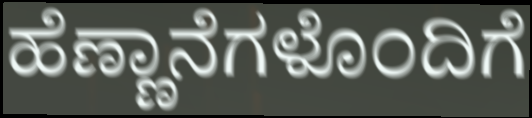
ಹೆಣ್ಣಾನೆಗಳೊಂದಿಗೆ